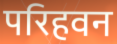
परिहवन